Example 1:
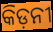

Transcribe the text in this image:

କିଡ଼ନୀ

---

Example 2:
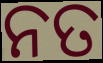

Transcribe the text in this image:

ନତ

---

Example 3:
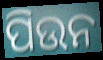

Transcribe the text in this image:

ପିଉନ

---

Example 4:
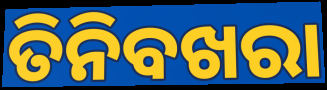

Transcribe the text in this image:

ତିନିବଖରା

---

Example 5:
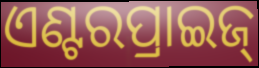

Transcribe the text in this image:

ଏଣ୍ଟରପ୍ରାଇଜ୍